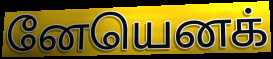
னேயெனக்